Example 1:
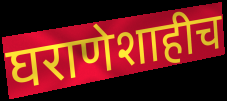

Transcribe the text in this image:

घराणेशाहीच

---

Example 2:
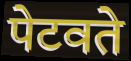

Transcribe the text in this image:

पेटवते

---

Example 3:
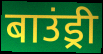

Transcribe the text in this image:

बाउंड्री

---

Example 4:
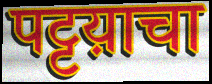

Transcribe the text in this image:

पट्टय़ाचा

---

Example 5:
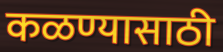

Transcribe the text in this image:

कळण्यासाठी